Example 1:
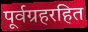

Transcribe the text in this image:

पूर्वग्रहरहित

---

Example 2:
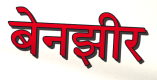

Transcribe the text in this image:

बेनझीर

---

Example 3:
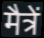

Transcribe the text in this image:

मैत्रें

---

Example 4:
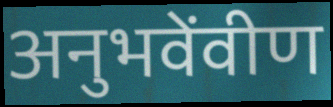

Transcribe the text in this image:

अनुभवेंवीण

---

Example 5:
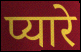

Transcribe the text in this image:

प्यारे